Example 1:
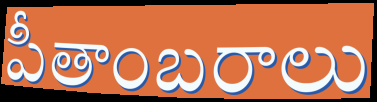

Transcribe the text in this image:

పీతాంబరాలు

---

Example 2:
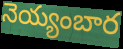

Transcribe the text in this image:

నెయ్యంబార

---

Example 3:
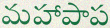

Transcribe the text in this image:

మహాపాప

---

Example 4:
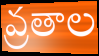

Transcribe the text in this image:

వ్రతాల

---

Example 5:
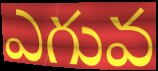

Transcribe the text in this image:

ఎగువ